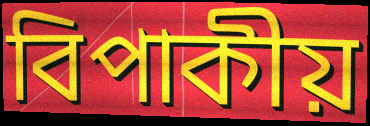
বিপাকীয়